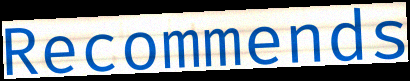
Recommends